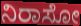
ನಿರಾಸೋ